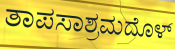
ತಾಪಸಾಶ್ರಮದೊಳ್